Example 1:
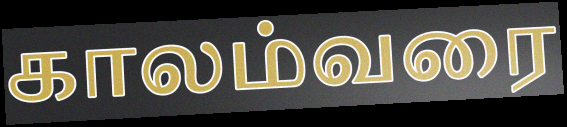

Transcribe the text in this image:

காலம்வரை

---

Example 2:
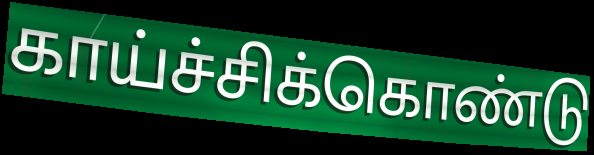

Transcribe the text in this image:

காய்ச்சிக்கொண்டு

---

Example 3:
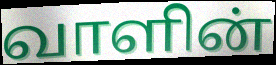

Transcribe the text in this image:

வாளின்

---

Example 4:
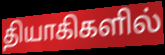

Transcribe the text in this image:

தியாகிகளில்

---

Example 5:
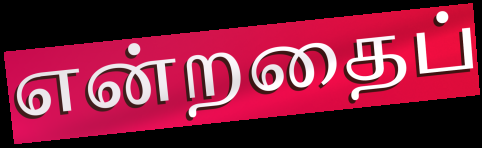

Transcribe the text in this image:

என்றதைப்